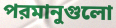
পরমানুগুলো